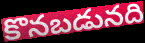
కొనబడునది